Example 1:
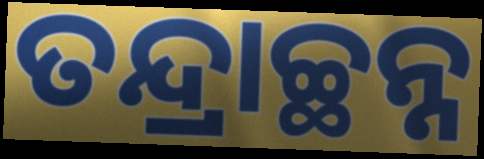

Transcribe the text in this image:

ତନ୍ଦ୍ରାଚ୍ଛନ୍ନ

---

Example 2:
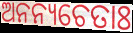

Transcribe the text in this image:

ଅନନ୍ୟଚେତାଃ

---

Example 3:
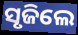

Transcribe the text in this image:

ସୃଜିଲେ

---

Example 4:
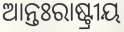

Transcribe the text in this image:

ଆନ୍ତଃରାଷ୍ଟ୍ରୀୟ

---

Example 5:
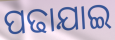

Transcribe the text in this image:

ପଢାଯାଇ